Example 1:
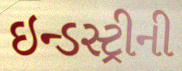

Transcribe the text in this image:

ઇન્ડસ્ટ્રીની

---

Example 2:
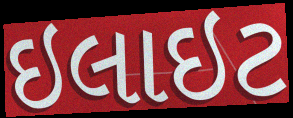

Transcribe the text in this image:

ઇલાઇટ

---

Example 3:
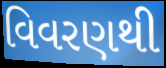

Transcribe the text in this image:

વિવરણથી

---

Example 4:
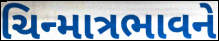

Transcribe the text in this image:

ચિન્માત્રભાવને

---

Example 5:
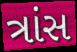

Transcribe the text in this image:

ત્રાંસ